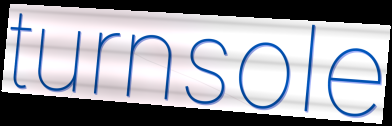
turnsole